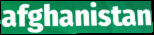
afghanistan